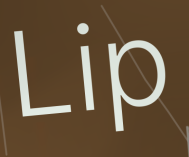
Lip